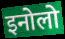
इनोलो